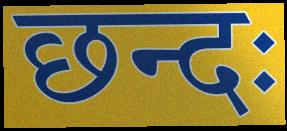
छन्दः